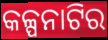
କଳ୍ପନାଟିର